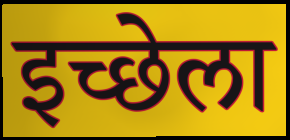
इच्छेला